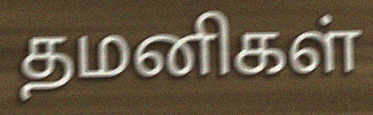
தமனிகள்